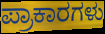
ಪ್ರಾಕಾರಗಳು